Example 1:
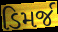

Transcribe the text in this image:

ડિમર્જ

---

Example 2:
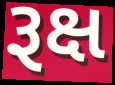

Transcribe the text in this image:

રૂક્ષ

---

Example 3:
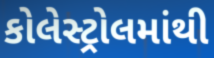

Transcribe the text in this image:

કોલેસ્ટ્રોલમાંથી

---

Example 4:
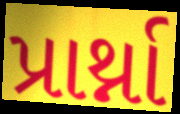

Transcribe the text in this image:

પ્રાર્થ્ના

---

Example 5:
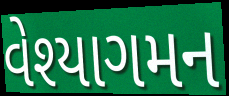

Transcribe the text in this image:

વેશ્યાગમન